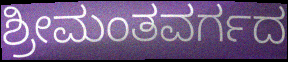
ಶ್ರೀಮಂತವರ್ಗದ